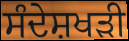
ਸੰਦੇਸ਼ਖੜੀ